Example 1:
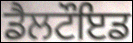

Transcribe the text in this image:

ਡੈਲਟੌਇਡ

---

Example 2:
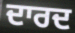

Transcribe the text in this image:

ਦਾਰਦ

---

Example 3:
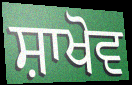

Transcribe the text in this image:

ਸ਼ਾਖੋਵ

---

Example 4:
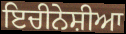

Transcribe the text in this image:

ਇਚੀਨੇਸ਼ੀਆ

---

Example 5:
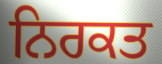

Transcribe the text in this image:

ਨਿਰਕਤ